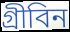
গ্রীবিন